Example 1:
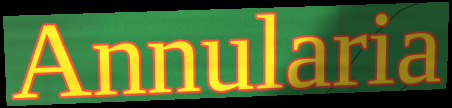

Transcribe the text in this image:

Annularia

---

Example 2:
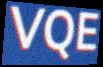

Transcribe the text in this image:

VQE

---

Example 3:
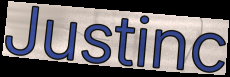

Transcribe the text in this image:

Justinc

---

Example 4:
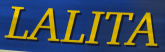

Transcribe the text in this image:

LALITA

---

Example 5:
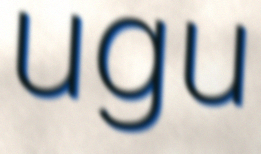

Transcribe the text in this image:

ugu